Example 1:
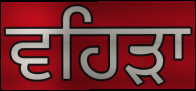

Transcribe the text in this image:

ਵਹਿੜਾ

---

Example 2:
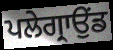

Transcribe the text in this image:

ਪਲੇਗ੍ਰਾਉਂਡ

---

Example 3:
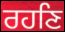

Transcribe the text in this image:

ਰਹਣਿ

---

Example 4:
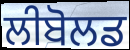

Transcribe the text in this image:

ਲੀਬੋਲਡ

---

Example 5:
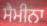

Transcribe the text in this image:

ਸੈਮੀਨਾ